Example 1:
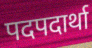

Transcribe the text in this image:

पदपदार्था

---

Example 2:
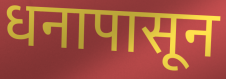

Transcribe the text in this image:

धनापासून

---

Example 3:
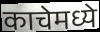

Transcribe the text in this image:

काचेमध्ये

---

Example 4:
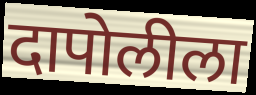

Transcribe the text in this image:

दापोलीला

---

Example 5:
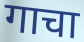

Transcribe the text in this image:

गाचा